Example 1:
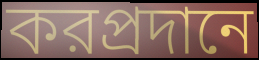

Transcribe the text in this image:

করপ্রদানে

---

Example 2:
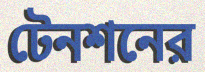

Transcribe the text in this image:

টেনশনের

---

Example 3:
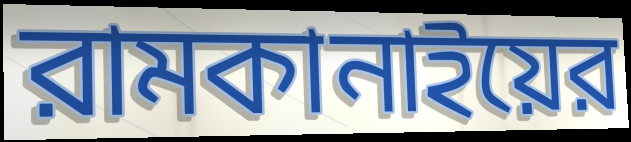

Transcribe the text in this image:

রামকানাইয়ের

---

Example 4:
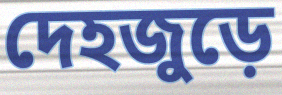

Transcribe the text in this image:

দেহজুড়ে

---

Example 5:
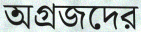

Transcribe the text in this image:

অগ্রজদের